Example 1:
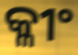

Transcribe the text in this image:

କ୍ଳୀଂ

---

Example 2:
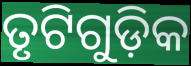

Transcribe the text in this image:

ତୃଟିଗୁଡ଼ିକ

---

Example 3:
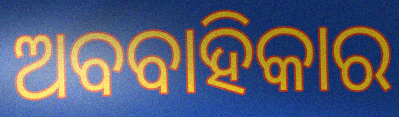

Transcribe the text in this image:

ଅବବାହିକାର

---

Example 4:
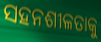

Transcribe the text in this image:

ସହନଶୀଳତାକୁ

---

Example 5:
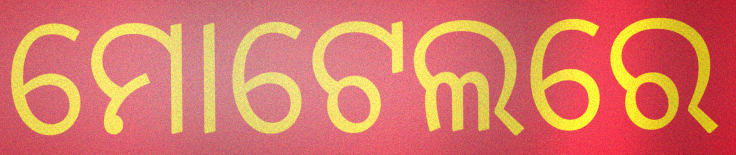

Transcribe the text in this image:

ମୋଟେଲରେ